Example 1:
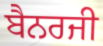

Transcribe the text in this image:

ਬੈਨਰਜੀ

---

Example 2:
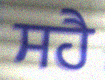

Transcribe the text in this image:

ਸਹੈ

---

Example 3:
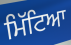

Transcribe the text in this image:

ਮਿੱਟਿਆ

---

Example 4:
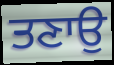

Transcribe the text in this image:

ਤਣਾਉ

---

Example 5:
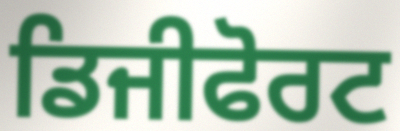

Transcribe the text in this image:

ਡਿਜੀਫੋਰਟ